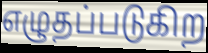
எழுதப்படுகிற